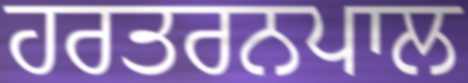
ਹਰਤਰਨਪਾਲ